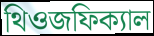
থিওজফিক্যাল